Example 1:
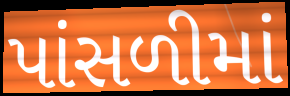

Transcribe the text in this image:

પાંસળીમાં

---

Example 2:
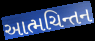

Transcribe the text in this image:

આત્મચિન્તન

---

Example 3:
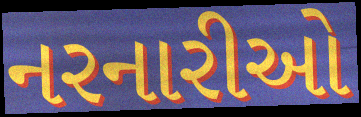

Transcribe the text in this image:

નરનારીઓ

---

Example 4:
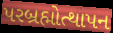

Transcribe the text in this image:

પરબ્રહ્મોત્થાપન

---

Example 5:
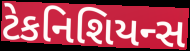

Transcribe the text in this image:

ટેકનિશિયન્સ